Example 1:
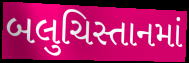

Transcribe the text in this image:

બલુચિસ્તાનમાં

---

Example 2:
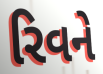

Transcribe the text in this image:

રિવને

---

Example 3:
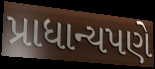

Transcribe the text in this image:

પ્રાધાન્યપણે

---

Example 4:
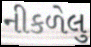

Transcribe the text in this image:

નીકળેલુ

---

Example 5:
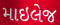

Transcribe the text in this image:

માઇલેજ